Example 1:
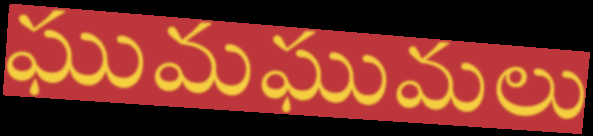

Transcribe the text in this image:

ఘుమఘుమలు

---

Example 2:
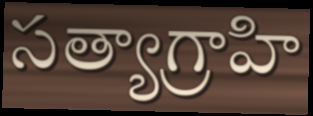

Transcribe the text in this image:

సత్యాగ్రాహి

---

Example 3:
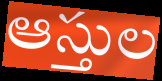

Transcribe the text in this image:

ఆస్తుల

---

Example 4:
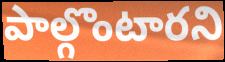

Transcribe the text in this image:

పాల్గొంటారని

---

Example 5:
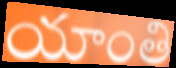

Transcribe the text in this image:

యాంతి